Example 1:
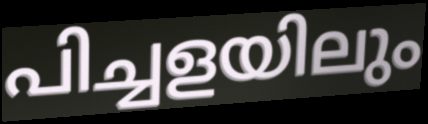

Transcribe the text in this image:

പിച്ചളയിലും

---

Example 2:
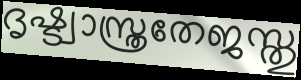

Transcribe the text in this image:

ദൃഷ്ട്വാസ്ത്രതേജസ്തു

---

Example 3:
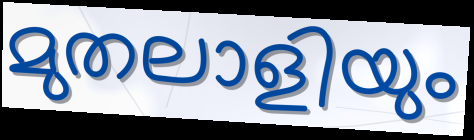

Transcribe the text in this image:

മുതലാളിയും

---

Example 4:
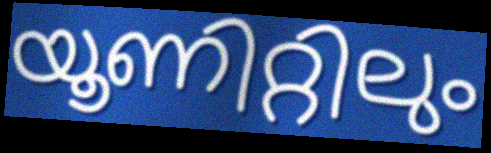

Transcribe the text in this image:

യൂണിറ്റിലും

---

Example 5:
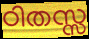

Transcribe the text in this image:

ഠിതസ്സ